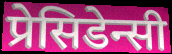
प्रेसिडेन्सी